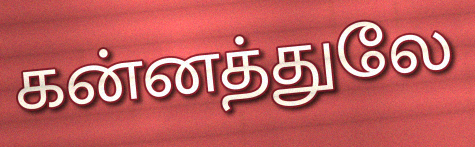
கன்னத்துலே